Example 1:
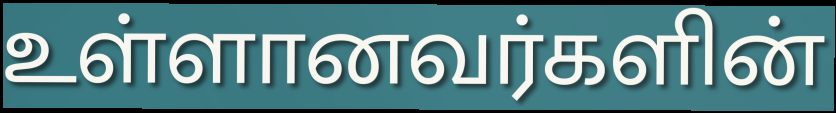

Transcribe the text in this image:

உள்ளானவர்களின்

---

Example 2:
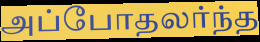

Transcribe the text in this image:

அப்போதலர்ந்த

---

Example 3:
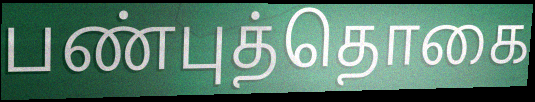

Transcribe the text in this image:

பண்புத்தொகை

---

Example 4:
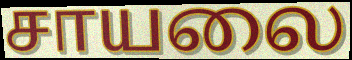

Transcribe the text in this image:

சாயலை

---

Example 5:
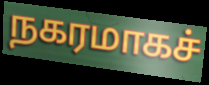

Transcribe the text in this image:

நகரமாகச்